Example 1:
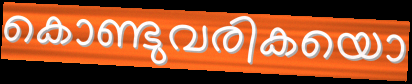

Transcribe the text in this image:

കൊണ്ടുവരികയൊ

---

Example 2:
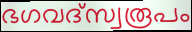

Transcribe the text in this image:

ഭഗവദ്സ്വരൂപം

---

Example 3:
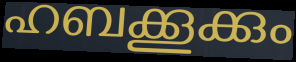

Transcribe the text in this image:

ഹബക്കൂക്കും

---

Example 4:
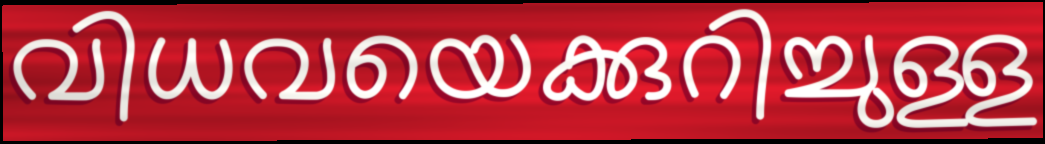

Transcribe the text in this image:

വിധവയെക്കുറിച്ചുള്ള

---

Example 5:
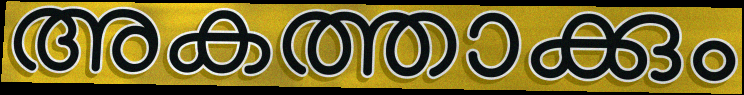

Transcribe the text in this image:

അകത്താക്കും